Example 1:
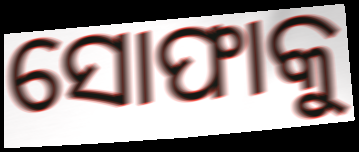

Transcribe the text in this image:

ସୋଫାକୁ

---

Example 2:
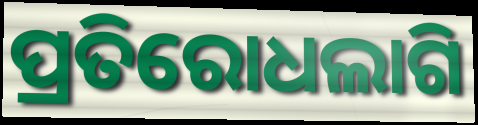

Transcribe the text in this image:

ପ୍ରତିରୋଧଲାଗି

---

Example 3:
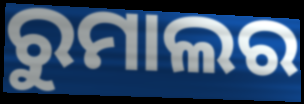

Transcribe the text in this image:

ରୁମାଲର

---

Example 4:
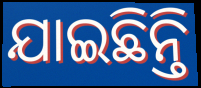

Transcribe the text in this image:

ଯାଇଛିନ୍ତି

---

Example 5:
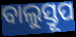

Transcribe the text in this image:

ବାଲୁସ୍ତୂପ